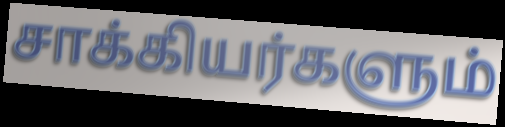
சாக்கியர்களும்